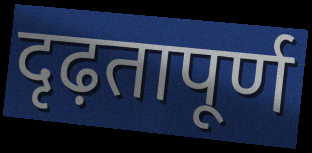
दृढ़तापूर्ण